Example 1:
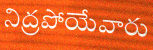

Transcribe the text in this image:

నిద్రపోయేవారు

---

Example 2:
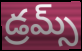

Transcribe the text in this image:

డ్రమ్స్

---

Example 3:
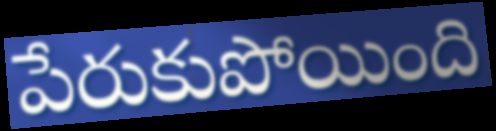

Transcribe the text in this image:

పేరుకుపోయింది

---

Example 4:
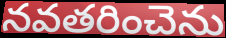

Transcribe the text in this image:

నవతరించెను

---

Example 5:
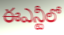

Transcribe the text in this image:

ఈఎన్టీలో